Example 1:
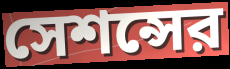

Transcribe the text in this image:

সেশন্সের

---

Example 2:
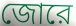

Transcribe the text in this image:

জোরে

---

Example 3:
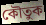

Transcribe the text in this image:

কৌতুক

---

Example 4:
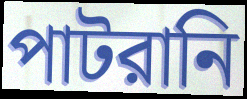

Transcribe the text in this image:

পাটরানি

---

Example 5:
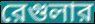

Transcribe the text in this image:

রেগুলার